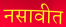
नसावीत